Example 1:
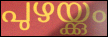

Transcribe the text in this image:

പുഴയ്ക്കും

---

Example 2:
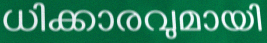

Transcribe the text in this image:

ധിക്കാരവുമായി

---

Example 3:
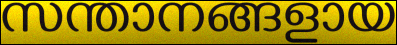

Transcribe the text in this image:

സന്താനങ്ങളായ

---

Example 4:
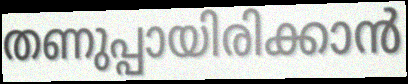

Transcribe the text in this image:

തണുപ്പായിരിക്കാൻ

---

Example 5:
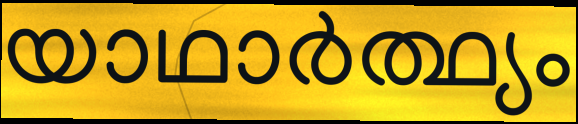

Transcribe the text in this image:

യാഥാർത്ഥ്യം